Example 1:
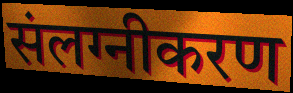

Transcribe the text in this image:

संलग्‍नीकरण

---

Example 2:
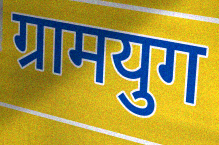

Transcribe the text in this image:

ग्रामयुग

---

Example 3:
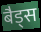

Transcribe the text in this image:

बैड्स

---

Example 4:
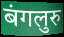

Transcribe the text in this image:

बंगलुरु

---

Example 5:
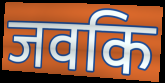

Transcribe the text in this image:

जवकि